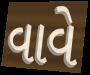
વાવે